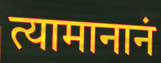
त्यामानानं